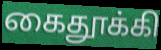
கைதூக்கி